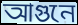
আগুনে